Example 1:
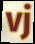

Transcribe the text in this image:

vj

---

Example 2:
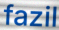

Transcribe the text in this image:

fazil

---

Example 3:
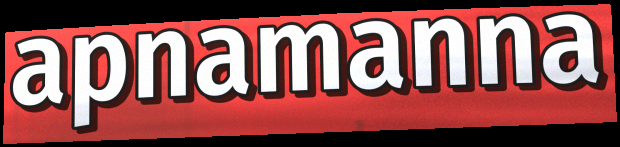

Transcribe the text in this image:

apnamanna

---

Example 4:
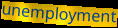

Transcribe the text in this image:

unemployment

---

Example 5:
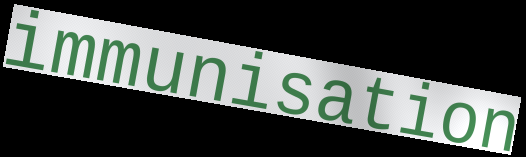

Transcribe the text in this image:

immunisation